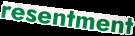
resentment